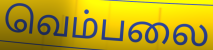
வெம்பலை